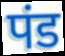
पंड